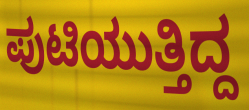
ಪುಟಿಯುತ್ತಿದ್ದ